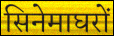
सिनेमाघरों